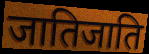
जातिजाति